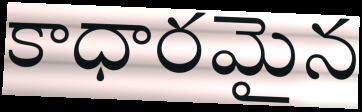
కాధారమైన